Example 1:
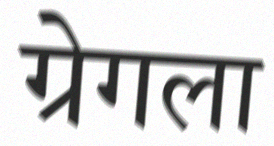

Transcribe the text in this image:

ग्रेगला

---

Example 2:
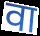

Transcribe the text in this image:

वा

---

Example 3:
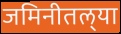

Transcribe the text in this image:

जमिनीतल्या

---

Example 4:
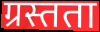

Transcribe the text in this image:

ग्रस्तता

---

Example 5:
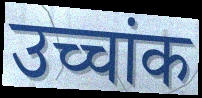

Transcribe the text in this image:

उच्चांक